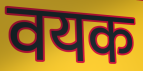
वयक